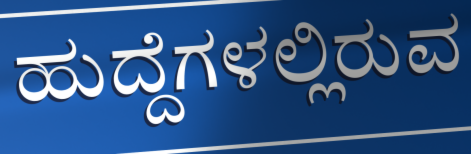
ಹುದ್ದೆಗಳಲ್ಲಿರುವ